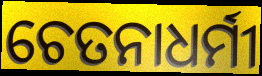
ଚେତନାଧର୍ମୀ